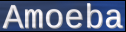
Amoeba